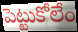
పెట్టుకోలేం